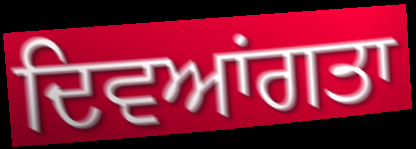
ਦਿਵਆਂਗਤਾ